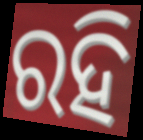
ରହି